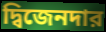
দ্বিজেনদার